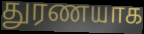
துரணயாக